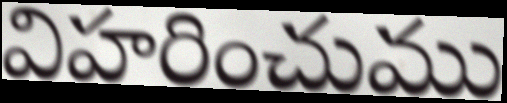
విహరించుము